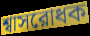
শ্বাসরোধক